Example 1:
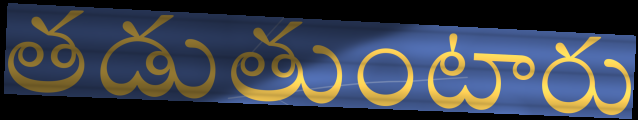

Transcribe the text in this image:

తడుతుంటారు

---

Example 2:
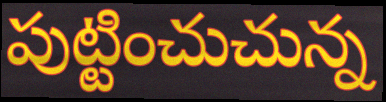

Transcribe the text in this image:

పుట్టించుచున్న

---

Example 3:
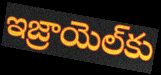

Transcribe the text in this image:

ఇజ్రాయెల్‌కు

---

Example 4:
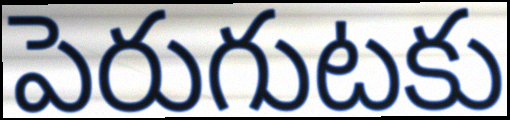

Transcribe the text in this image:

పెరుగుటకు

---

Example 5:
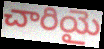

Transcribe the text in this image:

చారియై